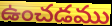
ఉంచడము